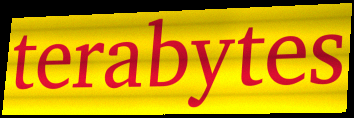
terabytes